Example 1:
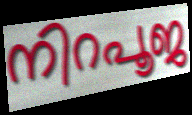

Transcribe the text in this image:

നിറപൂജ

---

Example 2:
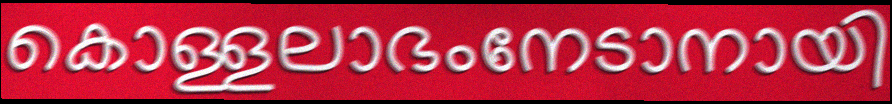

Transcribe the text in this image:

കൊള്ളലാഭംനേടാനായി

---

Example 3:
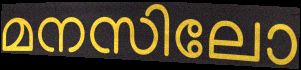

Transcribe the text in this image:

മനസിലോ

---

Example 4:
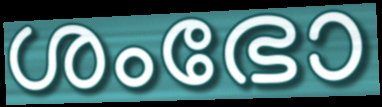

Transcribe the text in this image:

ശംഭോ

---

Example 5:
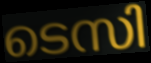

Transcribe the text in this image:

ടെസി